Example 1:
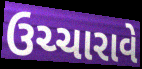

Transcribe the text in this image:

ઉચ્ચારાવે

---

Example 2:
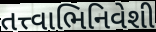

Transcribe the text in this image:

તત્ત્વાભિનિવેશી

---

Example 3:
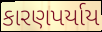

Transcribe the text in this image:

કારણપર્યાય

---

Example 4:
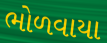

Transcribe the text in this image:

ભોળવાયા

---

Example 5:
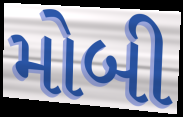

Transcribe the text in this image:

મોબી